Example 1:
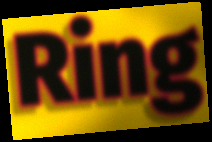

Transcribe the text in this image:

Ring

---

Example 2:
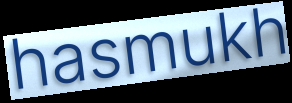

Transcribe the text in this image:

hasmukh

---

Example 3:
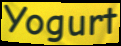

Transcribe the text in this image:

Yogurt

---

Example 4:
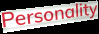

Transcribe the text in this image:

Personality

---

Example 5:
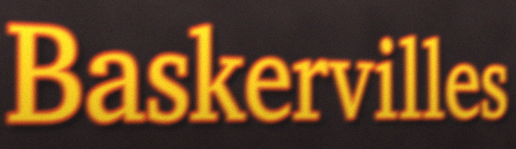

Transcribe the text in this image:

Baskervilles